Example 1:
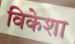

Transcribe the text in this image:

विकेशा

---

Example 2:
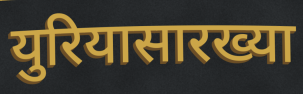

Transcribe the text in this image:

युरियासारख्या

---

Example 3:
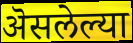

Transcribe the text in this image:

ऄसलेल्या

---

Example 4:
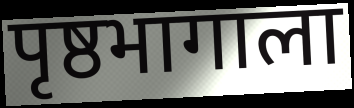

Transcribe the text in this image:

पृष्ठभागाला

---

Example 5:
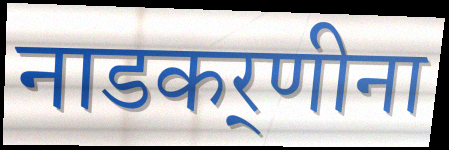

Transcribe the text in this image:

नाडकर्णीना